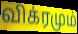
விக்ரமும்